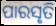
ପାରସୃତି